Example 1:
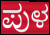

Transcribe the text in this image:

ಪುಳ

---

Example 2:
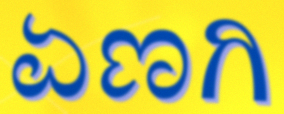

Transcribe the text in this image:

ಏಣಗಿ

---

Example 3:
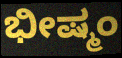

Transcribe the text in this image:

ಭೀಷ್ಮಂ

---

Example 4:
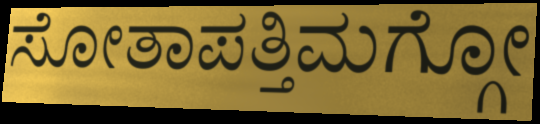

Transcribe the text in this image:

ಸೋತಾಪತ್ತಿಮಗ್ಗೋ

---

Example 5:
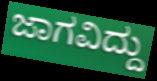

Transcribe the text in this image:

ಜಾಗವಿದ್ದು